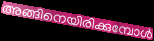
അങ്ങിനെയിരിക്കുമ്പോൾ